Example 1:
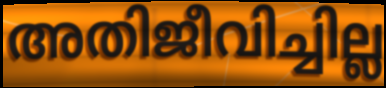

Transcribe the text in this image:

അതിജീവിച്ചില്ല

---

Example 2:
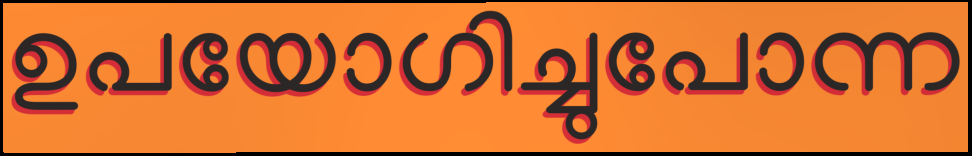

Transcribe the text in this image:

ഉപയോഗിച്ചുപോന്ന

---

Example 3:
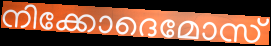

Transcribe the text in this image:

നിക്കോദെമോസ്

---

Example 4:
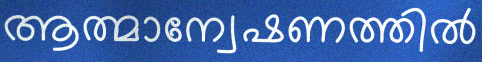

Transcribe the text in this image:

ആത്മാന്വേഷണത്തിൽ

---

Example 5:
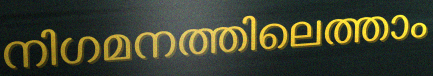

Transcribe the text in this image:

നിഗമനത്തിലെത്താം